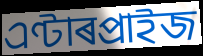
এণ্টাৰপ্ৰাইজ